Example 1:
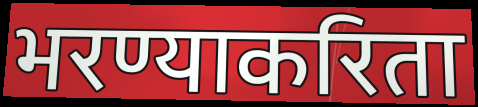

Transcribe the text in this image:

भरण्याकरिता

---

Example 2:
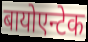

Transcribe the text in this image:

बायोएन्टेक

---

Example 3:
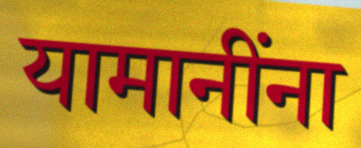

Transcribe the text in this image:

यामानींना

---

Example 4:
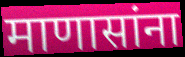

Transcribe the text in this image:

माणासांना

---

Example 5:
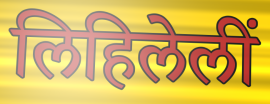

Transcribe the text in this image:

लिहिलेलीं